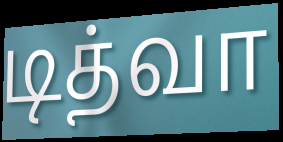
டித்வா